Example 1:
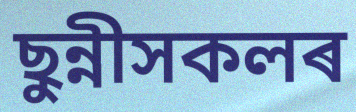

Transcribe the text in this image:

ছুন্নীসকলৰ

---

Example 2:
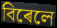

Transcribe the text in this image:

বিৰেলে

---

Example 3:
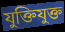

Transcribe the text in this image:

যুক্তিযুক্ত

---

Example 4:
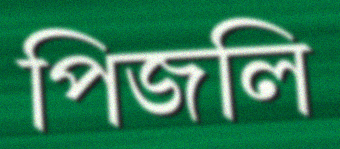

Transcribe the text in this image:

পিজলি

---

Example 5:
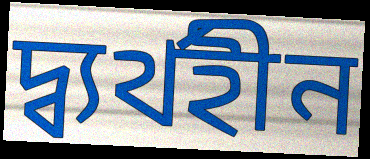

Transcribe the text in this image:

দ্ব্যৰ্থহীন